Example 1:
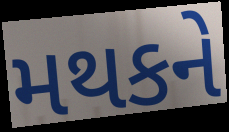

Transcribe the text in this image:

મથકને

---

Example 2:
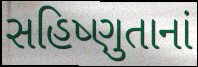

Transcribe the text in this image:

સહિષ્ણુતાનાં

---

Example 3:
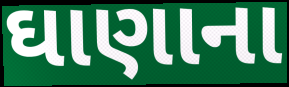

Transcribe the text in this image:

ઘાણાના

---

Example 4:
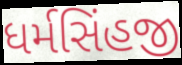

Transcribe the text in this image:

ધર્મસિંહજી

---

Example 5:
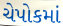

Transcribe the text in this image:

ચેપોકમાં